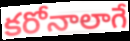
కరోనాలాగే